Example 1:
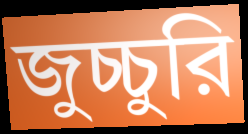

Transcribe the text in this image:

জুচ্চুরি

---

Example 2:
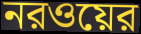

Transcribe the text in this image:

নরওয়ের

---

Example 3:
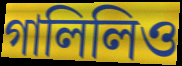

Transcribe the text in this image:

গালিলিও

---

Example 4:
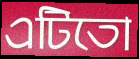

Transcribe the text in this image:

এটিতো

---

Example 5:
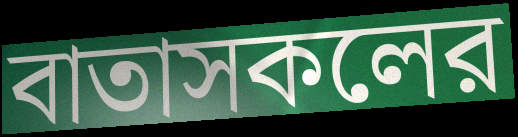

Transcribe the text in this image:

বাতাসকলের